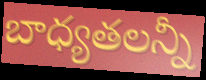
బాధ్యతలన్నీ